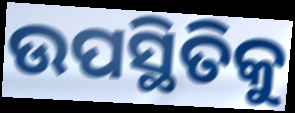
ଉପସ୍ଥିତିକୁ